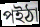
পইঠা